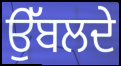
ਉੱਬਲਦੇ